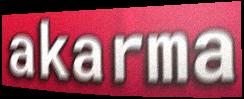
akarma